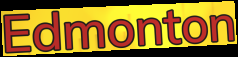
Edmonton